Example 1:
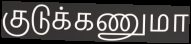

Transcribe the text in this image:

குடுக்கணுமா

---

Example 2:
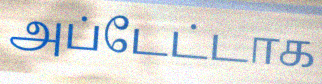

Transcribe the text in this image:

அப்டேட்டாக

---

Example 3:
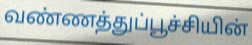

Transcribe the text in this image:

வண்ணத்துப்பூச்சியின்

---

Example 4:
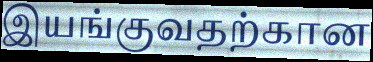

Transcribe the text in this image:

இயங்குவதற்கான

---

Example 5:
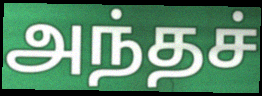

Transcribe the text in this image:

அந்தச்